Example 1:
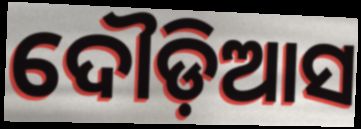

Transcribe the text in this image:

ଦୌଡ଼ିଆସ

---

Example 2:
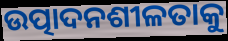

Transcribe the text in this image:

ଉତ୍ପାଦନଶୀଳତାକୁ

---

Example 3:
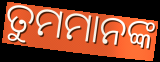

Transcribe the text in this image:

ତୁମମାନଙ୍କ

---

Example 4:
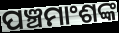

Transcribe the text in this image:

ପଞ୍ଚମାଂଶଙ୍କ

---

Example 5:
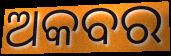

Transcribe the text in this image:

ଅକବର